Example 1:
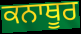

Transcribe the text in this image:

ਕਨਾਥੂਰ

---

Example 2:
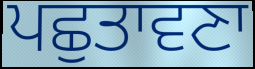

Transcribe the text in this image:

ਪਛੁਤਾਵਣਾ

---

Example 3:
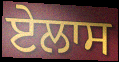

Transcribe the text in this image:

ਏਲਾਸ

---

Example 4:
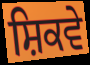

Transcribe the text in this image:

ਸ਼ਿਕਵੇ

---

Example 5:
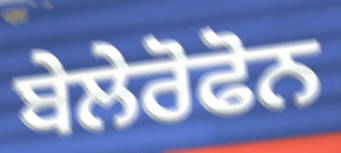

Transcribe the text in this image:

ਬੇਲੇਰੋਫੋਨ